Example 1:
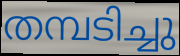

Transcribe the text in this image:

തമ്പടിച്ചു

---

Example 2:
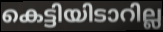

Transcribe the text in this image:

കെട്ടിയിടാറില്ല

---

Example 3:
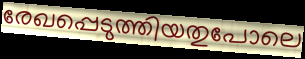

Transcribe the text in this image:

രേഖപ്പെടുത്തിയതുപോലെ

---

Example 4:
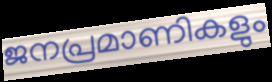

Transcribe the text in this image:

ജനപ്രമാണികളും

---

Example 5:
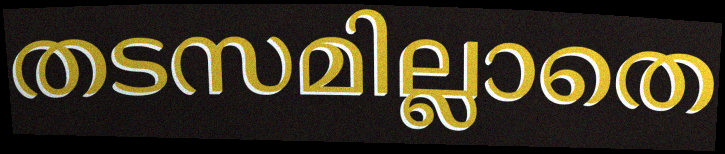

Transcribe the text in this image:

തടസമില്ലാതെ